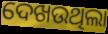
ଦେଖଉଥିଲା